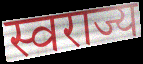
स्वराज्य